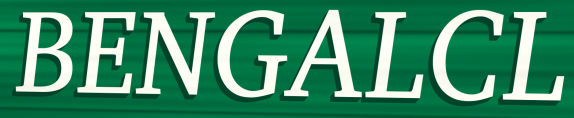
BENGALCL